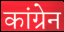
कांग्रेन